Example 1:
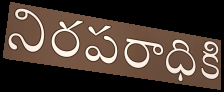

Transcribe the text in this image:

నిరపరాధికి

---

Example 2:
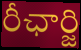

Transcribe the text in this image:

రీఛార్జి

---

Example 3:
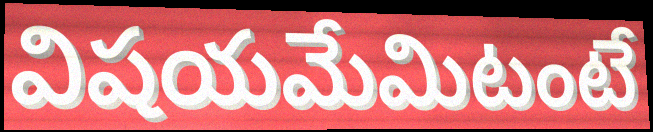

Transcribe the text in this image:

విషయమేమిటంటే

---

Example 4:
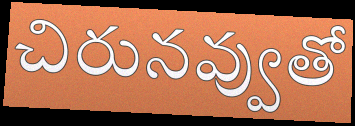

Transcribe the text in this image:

చిరునవ్వుతో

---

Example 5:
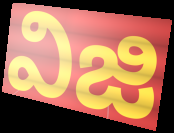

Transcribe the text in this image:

విజి